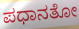
ಪಧಾನತೋ